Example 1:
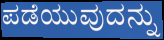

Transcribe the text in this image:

ಪಡೆಯುವುದನ್ನು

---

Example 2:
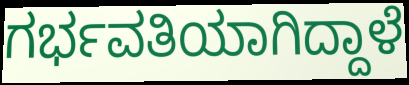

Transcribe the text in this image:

ಗರ್ಭವತಿಯಾಗಿದ್ದಾಳೆ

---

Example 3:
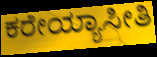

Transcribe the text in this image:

ಕರೇಯ್ಯಾಸೀತಿ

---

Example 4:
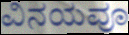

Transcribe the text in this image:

ವಿನಯವೂ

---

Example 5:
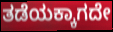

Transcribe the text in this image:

ತಡೆಯಕ್ಕಾಗದೇ